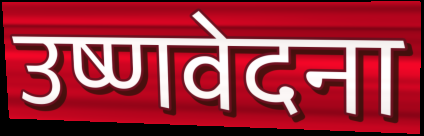
उष्णवेदना